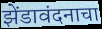
झेंडावंदनाचा